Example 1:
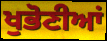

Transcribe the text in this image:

ਖੁਭੋਣੀਆਂ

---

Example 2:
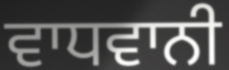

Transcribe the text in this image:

ਵਾਧਵਾਨੀ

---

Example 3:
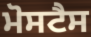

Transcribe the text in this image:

ਮੋਸਟੈਸ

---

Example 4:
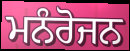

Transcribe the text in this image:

ਮਨੰਰੋਜਨ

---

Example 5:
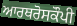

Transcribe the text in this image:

ਆਰਥਰੋਸਕੌਪੀ